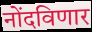
नोंदविणार